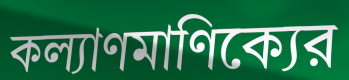
কল্যাণমাণিক্যের